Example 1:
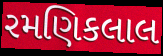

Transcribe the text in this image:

રમણિકલાલ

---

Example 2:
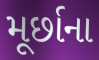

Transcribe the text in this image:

મૂર્છાના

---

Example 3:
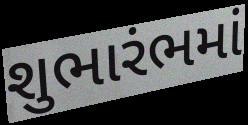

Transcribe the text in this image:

શુભારંભમાં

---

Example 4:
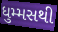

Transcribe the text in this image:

ધુમ્મસથી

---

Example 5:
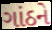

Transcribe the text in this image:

ગાંઠને